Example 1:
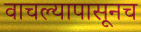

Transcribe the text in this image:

वाचल्यापासूनच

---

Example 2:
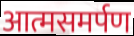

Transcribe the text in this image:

आत्मसमर्पण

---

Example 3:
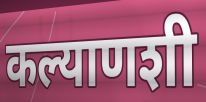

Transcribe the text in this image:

कल्याणशी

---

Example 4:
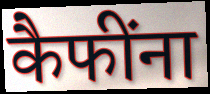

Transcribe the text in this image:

कैफींना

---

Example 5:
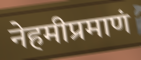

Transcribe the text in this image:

नेहमीप्रमाणं